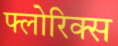
फ्लोरिक्स